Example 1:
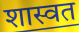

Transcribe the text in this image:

शास्वत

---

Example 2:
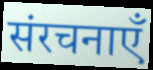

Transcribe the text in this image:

संरचनाएँ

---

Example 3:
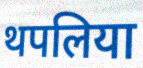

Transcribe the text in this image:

थपलिया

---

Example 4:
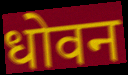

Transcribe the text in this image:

धोवन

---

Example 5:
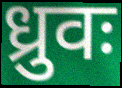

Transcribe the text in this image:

ध्रुवः